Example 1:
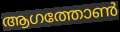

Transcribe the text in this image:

ആഗത്തോൺ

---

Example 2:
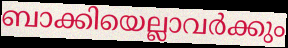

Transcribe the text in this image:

ബാക്കിയെല്ലാവർക്കും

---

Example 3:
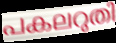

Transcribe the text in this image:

പകലറുതി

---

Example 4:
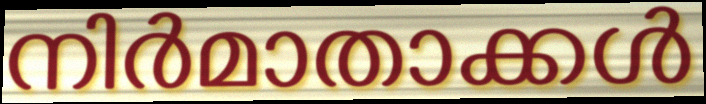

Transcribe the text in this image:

നിർമാതാക്കൾ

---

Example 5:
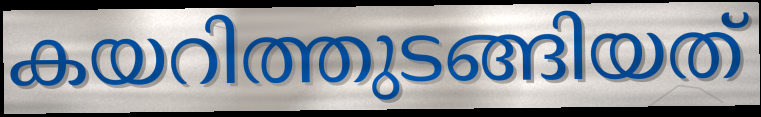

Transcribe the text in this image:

കയറിത്തുടങ്ങിയത്